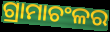
ଗ୍ରାମାଚଂଳର